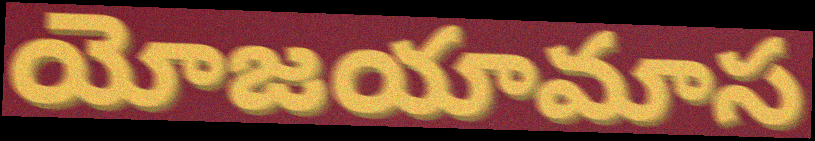
యోజయామాస